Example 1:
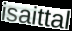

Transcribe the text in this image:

isaittal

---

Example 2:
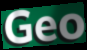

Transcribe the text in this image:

Geo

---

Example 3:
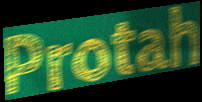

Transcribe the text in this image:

Protah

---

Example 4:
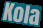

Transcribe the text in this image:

Kola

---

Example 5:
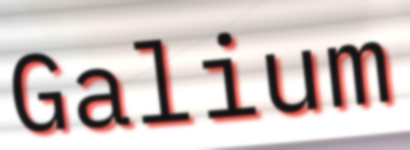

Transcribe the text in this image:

Galium